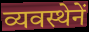
व्यवस्थेनें